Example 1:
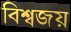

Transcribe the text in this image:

বিশ্বজয়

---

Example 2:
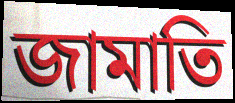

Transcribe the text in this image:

জামাতি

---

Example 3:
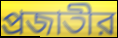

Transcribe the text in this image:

প্রজাতীর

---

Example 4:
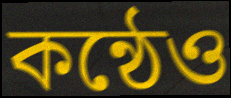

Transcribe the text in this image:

কন্ঠেও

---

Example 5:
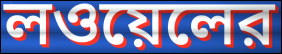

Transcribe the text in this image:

লওয়েলের